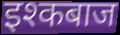
इश्कबाज